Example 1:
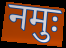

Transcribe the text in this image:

नमुः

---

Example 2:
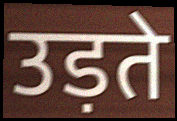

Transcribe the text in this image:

उड़ते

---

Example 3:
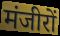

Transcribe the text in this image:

मंजीरों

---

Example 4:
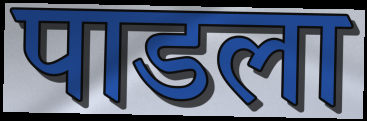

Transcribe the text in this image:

पाडला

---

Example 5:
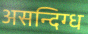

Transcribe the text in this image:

असन्दिग्ध